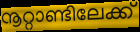
നൂറ്റാണ്ടിലേക്ക്